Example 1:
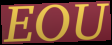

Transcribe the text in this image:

EOU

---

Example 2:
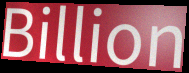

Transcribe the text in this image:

Billion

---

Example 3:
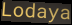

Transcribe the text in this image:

Lodaya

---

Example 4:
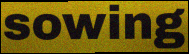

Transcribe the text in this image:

sowing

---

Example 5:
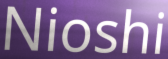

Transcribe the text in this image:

Nioshi